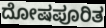
ದೋಷಪೂರಿತ